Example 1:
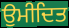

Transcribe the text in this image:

ਉਮੀਦਿਤ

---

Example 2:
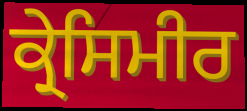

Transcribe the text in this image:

ਕ੍ਰੇਸਿਮੀਰ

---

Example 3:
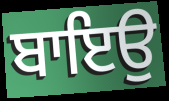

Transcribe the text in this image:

ਬਾਇਉ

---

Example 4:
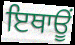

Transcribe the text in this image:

ਇਥਾਊਂ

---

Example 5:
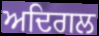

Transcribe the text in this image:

ਅਦਿਗਲ